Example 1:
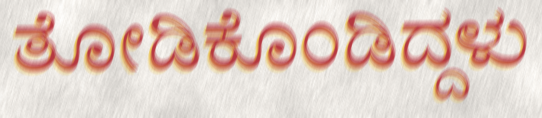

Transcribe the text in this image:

ತೋಡಿಕೊಂಡಿದ್ದಳು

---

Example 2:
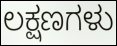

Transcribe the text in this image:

ಲಕ್ಷಣಗಳು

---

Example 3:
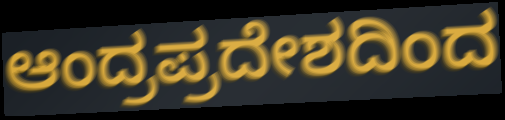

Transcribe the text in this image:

ಆಂದ್ರಪ್ರದೇಶದಿಂದ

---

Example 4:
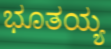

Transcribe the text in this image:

ಭೂತಯ್ಯ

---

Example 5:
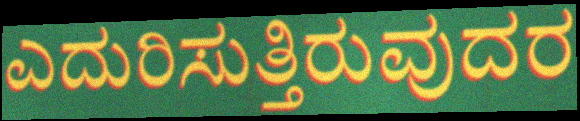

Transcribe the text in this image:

ಎದುರಿಸುತ್ತಿರುವುದರ